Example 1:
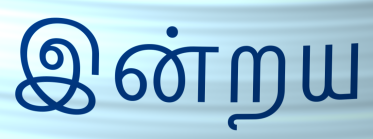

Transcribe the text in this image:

இன்றய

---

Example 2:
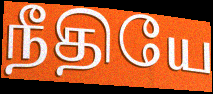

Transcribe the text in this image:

நீதியே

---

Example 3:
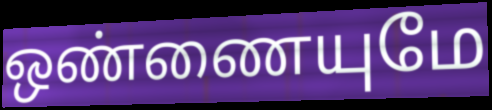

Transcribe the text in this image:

ஒண்ணையுமே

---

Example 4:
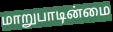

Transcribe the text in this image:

மாறுபாடின்மை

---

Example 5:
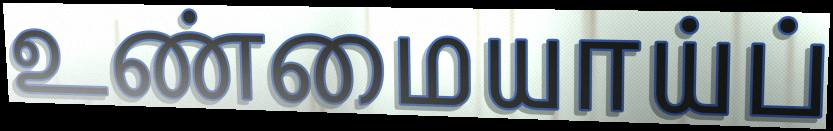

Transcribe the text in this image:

உண்மையாய்ப்